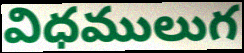
విధములుగ